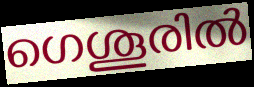
ഗെശൂരിൽ